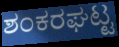
ಶಂಕರಘಟ್ಟ